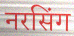
नरसिंग